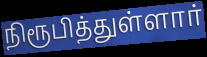
நிரூபித்துள்ளார்